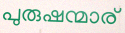
പുരുഷന്മാര്